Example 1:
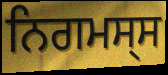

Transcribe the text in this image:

ਨਿਗਮਸ੍ਸ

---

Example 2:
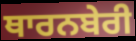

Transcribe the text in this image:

ਥਾਰਨਬੇਰੀ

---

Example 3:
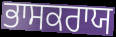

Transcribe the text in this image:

ਭਾਸਕਰਾਯ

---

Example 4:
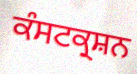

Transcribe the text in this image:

ਕੰਸਟਕ੍ਰਸ਼ਨ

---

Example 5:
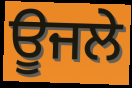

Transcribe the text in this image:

ਊਜਲੇ